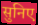
सुनिए